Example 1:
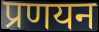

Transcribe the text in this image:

प्रणयन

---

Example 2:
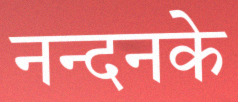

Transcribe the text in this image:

नन्दनके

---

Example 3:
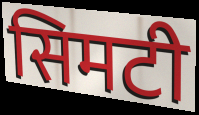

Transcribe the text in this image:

सिमटी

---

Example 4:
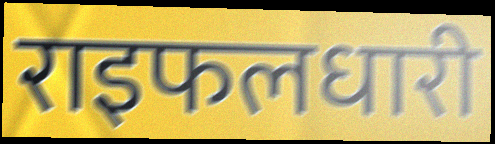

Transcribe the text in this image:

राइफलधारी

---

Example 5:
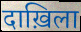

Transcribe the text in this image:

दाख़िला